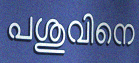
പശുവിനെ